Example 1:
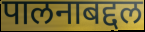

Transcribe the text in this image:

पालनाबद्दल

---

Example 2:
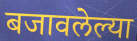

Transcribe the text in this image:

बजावलेल्या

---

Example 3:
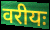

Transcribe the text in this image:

वरीयः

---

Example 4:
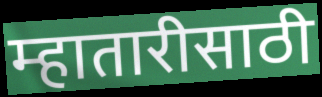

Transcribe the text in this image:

म्हातारीसाठी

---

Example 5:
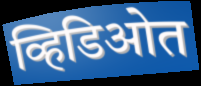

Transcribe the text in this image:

व्हिडिओत